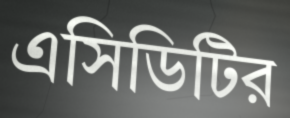
এসিডিটির